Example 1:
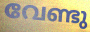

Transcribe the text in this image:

വേണ്ടു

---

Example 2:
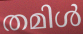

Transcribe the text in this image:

തമിൾ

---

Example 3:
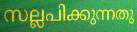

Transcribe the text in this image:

സല്ലപിക്കുന്നതു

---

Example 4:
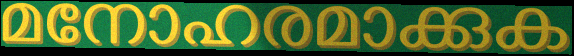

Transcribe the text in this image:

മനോഹരമാക്കുക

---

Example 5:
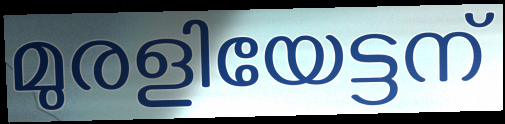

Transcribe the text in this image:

മുരളിയേട്ടന്